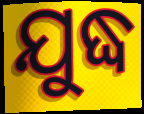
ଯୁଦ୍ଧ